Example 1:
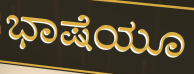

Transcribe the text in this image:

ಭಾಷೆಯೂ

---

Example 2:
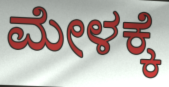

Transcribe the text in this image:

ಮೇಳಕ್ಕೆ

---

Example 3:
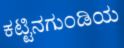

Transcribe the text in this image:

ಕಟ್ಟಿನಗುಂಡಿಯ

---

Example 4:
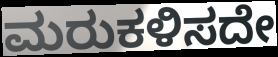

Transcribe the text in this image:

ಮರುಕಳಿಸದೇ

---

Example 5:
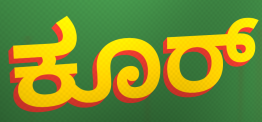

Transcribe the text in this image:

ಕೂರ್